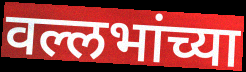
वल्लभांच्या